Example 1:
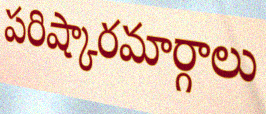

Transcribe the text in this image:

పరిష్కారమార్గాలు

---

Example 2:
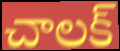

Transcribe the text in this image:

చాలక్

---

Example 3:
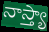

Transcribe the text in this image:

నాస్త్యా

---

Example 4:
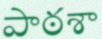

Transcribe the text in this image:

పాఠశా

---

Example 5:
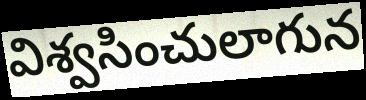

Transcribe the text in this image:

విశ్వసించులాగున